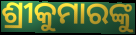
ଶ୍ରୀକୁମାରଙ୍କୁ